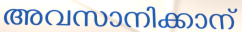
അവസാനിക്കാന്